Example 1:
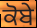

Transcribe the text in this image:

ਕੋਬੇ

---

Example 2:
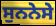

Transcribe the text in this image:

ਸੁਨਨੇਸੇ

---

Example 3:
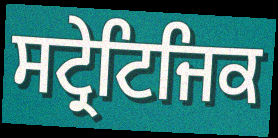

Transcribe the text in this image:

ਸਟ੍ਰੇਟਿਜਿਕ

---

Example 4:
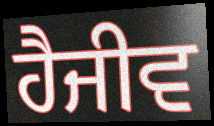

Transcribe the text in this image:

ਹੈਜੀਵ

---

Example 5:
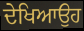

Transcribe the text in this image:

ਦੇਖਿਆਉਹ